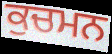
ਕੁਚਮਨ